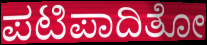
ಪಟಿಪಾದಿತೋ